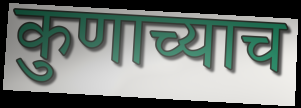
कुणाच्याच